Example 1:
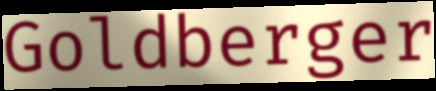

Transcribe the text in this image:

Goldberger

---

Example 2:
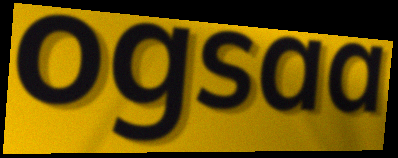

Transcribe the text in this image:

ogsaa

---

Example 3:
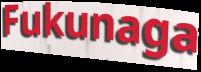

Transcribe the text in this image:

Fukunaga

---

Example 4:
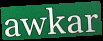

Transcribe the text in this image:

awkar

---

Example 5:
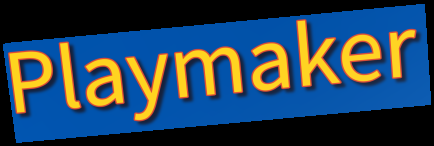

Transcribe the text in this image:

Playmaker